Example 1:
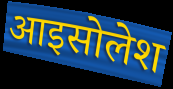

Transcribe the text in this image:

आइसोलेश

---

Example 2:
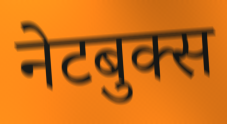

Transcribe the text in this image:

नेटबुक्स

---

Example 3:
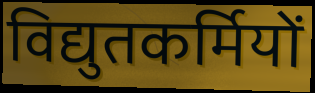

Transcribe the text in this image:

विद्युतकर्मियों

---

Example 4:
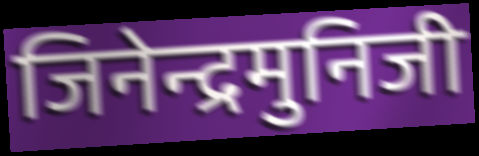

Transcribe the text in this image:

जिनेन्द्रमुनिजी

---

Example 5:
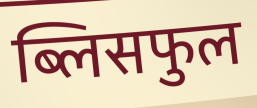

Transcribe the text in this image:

ब्लिसफुल